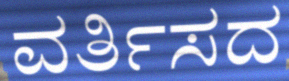
ವರ್ತಿಸದ